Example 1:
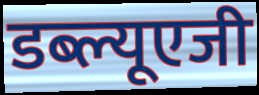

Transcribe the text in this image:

डब्ल्यूएजी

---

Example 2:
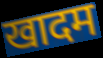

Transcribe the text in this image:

खादम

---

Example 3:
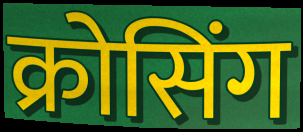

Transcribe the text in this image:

क्रोसिंग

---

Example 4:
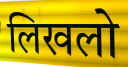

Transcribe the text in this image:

लिखलो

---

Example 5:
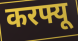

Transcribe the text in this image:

करफ्यू